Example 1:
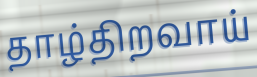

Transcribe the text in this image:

தாழ்திறவாய்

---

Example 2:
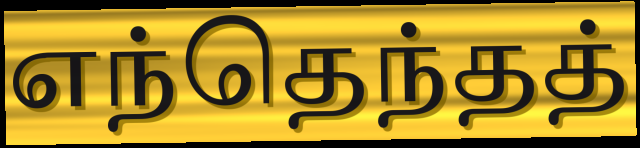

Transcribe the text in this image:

எந்தெந்தத்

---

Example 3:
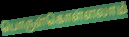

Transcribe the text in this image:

பொருள்கொள்ளலாம்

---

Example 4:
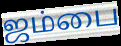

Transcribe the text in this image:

ஜம்பை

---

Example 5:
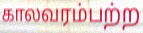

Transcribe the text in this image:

காலவரம்பற்ற